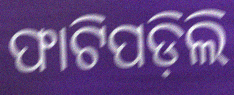
ଫାଟିପଡ଼ିଲି